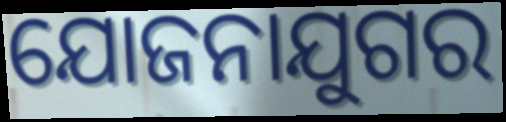
ଯୋଜନାଯୁଗର